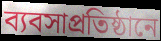
ব্যবসাপ্রতিষ্ঠানে